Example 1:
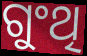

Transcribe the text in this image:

ଗୁଂଥି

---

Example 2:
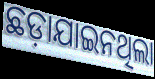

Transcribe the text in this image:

ଛଡ଼ାଯାଇନଥିଲା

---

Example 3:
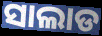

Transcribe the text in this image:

ସାଲାଡ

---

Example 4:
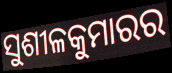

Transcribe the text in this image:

ସୁଶୀଳକୁମାରର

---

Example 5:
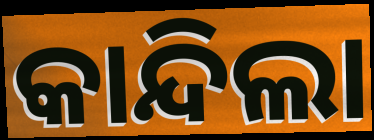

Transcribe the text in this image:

କାନ୍ଦିଲା